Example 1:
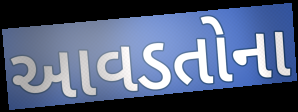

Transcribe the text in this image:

આવડતોના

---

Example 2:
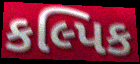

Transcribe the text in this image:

કલ્પિક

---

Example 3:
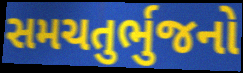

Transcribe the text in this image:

સમચતુર્ભુજનો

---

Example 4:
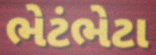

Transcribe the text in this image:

ભેટંભેટા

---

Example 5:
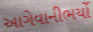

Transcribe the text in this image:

આગેવાનીભર્યો